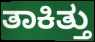
ತಾಕಿತ್ತು